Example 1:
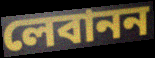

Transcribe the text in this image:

লেবানন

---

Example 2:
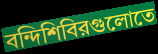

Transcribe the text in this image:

বন্দিশিবিরগুলোতে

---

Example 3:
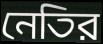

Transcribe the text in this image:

নেতির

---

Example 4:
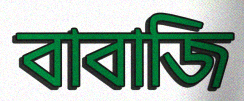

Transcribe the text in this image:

বাবাজি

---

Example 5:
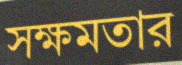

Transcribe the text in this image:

সক্ষমতার